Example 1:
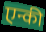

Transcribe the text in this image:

एन्की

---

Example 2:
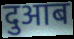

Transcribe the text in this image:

दुआब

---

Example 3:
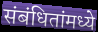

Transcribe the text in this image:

संबंधितांमध्ये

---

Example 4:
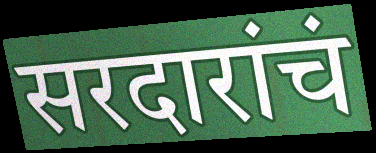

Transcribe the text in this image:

सरदारांचं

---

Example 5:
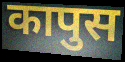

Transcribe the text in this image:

कापुस